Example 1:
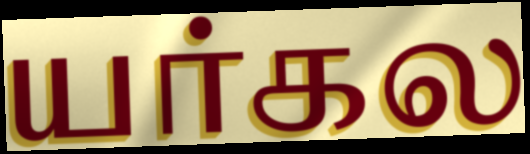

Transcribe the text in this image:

யர்கல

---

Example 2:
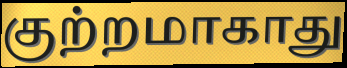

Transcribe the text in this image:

குற்றமாகாது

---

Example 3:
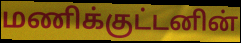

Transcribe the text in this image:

மணிக்குட்டனின்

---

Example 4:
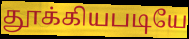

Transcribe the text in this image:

தூக்கியபடியே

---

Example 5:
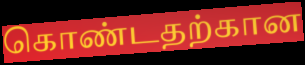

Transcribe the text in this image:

கொண்டதற்கான